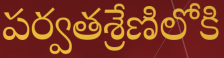
పర్వతశ్రేణిలోకి